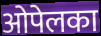
ओपेलका